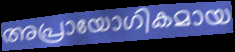
അപ്രായോഗികമായ